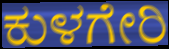
ಕುಳಗೇರಿ